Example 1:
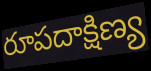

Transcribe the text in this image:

రూపదాక్షిణ్య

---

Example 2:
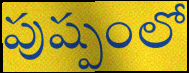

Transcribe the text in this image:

పుష్పంలో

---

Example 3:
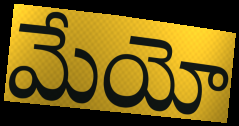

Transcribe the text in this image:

మేయో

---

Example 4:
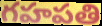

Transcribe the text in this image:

గహపతి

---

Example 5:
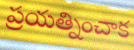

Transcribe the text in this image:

ప్రయత్నించాక